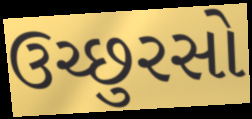
ઉચ્છુરસો